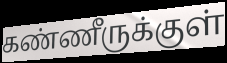
கண்ணீருக்குள்